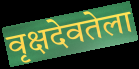
वृक्षदेवतेला